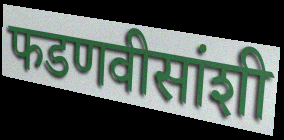
फडणवीसांशी